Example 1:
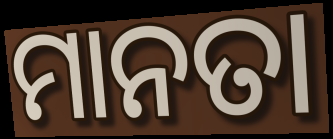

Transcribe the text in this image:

ମାନତା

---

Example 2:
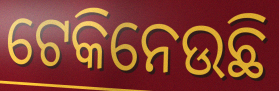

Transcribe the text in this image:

ଟେକିନେଉଛି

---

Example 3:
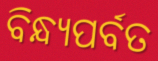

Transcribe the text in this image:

ବିନ୍ଧ୍ୟପର୍ବତ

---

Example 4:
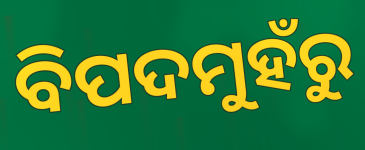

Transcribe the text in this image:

ବିପଦମୁହଁରୁ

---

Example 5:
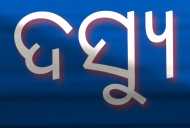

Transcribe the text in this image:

ଦସ୍ୟୁ